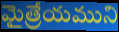
మైత్రేయముని